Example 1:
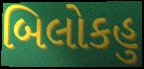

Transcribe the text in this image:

બિલોકહુ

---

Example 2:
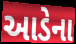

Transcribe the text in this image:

આડેના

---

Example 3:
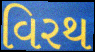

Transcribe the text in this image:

વિરથ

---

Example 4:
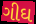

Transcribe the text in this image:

ગીઘ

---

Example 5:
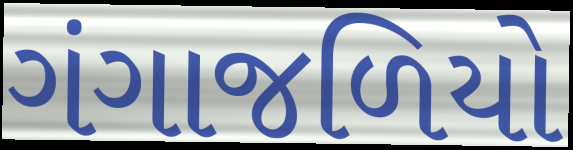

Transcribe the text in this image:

ગંગાજળિયો